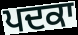
ਪਦਕਾ